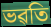
ভৱতি